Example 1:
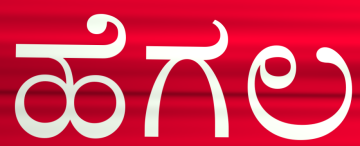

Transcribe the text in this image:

ಹೆಗಲ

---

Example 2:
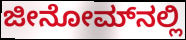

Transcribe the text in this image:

ಜೀನೋಮ್‌ನಲ್ಲಿ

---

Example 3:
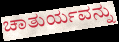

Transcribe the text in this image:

ಚಾತುರ್ಯವನ್ನು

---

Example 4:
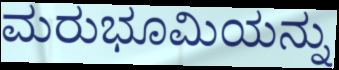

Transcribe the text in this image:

ಮರುಭೂಮಿಯನ್ನು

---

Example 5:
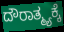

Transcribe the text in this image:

ದೌರಾತ್ಮ್ಯಕ್ಕೆ